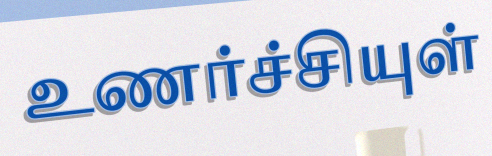
உணர்ச்சியுள்